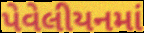
પેવેલીયનમાં